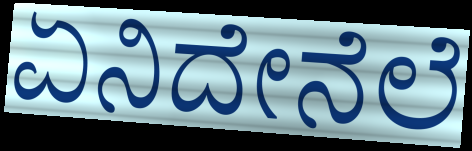
ಏನಿದೇನೆಲೆ